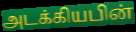
அடக்கியபின்